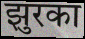
झुरका